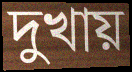
দুখায়